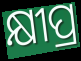
କ୍ଷୀପ୍ର